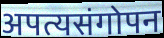
अपत्यसंगोपन